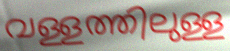
വള്ളത്തിലുള്ള